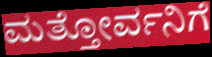
ಮತ್ತೋರ್ವನಿಗೆ